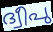
ദ്വീപു